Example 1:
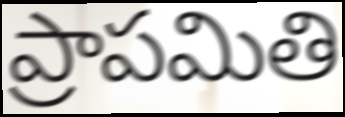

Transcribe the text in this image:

ప్రాపమితి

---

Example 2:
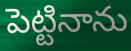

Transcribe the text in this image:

పెట్టినాను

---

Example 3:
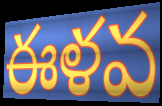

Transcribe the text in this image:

ఈళవ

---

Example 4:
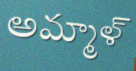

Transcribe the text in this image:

అమ్మాళ్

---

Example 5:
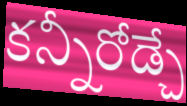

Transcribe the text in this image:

కన్నీరోడ్చే